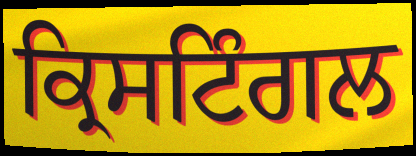
ਕ੍ਰਿਸਟਿੰਗਲ